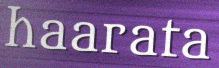
haarata